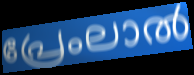
പ്രേംലാൽ